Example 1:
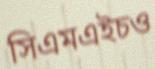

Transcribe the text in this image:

সিএমএইচও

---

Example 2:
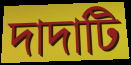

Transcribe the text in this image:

দাদাটি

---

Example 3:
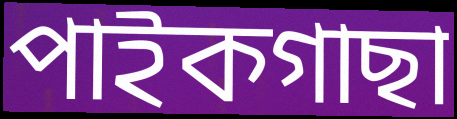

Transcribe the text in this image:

পাইকগাছা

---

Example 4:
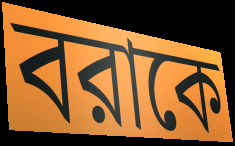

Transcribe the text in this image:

বরাকে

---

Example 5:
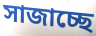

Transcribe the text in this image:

সাজাচ্ছে